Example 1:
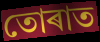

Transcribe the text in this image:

তোৰাত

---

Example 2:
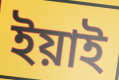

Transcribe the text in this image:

ইয়াই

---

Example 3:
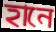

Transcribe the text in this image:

হানে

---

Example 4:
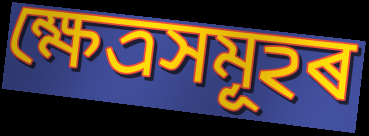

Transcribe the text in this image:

ক্ষেত্ৰসমূহৰ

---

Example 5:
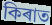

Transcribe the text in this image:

কিৰাত